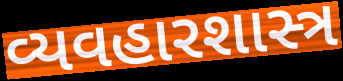
વ્યવહારશાસ્ત્ર